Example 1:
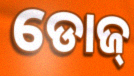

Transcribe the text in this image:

ଡୋଜ୍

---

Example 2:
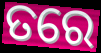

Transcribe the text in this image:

ତରେ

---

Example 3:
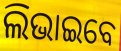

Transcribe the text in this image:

ଲିଭାଇବେ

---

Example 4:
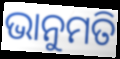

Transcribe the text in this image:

ଭାନୁମତି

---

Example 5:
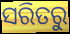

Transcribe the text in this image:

ସରିତରୁ